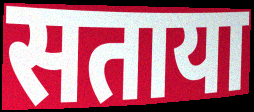
सताया